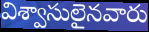
విశ్వాసులైనవారు